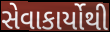
સેવાકાર્યોથી